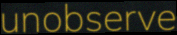
unobserve